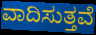
ವಾದಿಸುತ್ತವೆ